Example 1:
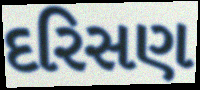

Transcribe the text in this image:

દરિસણ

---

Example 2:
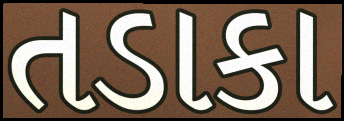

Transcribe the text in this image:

તડાકા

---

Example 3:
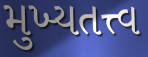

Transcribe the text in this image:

મુખ્યતત્ત્વ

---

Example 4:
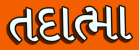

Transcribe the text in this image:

તદાત્મા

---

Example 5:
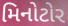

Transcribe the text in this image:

મિનોટોર